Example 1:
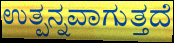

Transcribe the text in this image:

ಉತ್ಪನ್ನವಾಗುತ್ತದೆ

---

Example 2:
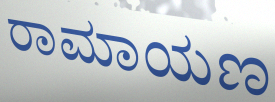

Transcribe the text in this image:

ರಾಮಾಯಣ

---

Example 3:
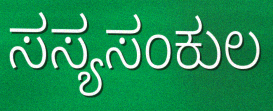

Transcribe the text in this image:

ಸಸ್ಯಸಂಕುಲ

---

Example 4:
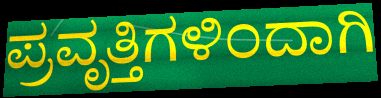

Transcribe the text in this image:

ಪ್ರವೃತ್ತಿಗಳಿಂದಾಗಿ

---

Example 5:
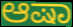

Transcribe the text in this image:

ಆಷಾ